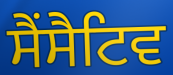
ਸੈਂਸੈਟਿਵ